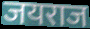
जयराज